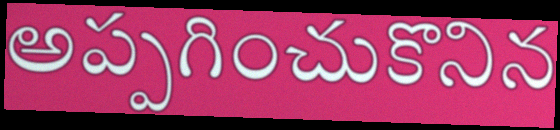
అప్పగించుకొనిన